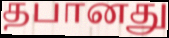
தபானது